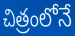
చిత్రంలోనే